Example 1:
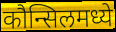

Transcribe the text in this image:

कौन्सिलमध्ये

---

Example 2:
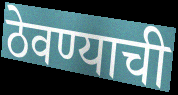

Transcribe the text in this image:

ठेवण्याची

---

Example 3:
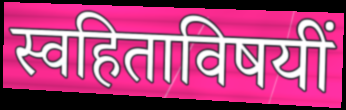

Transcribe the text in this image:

स्वहिताविषयीं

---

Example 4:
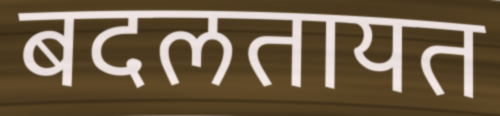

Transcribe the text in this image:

बदलतायत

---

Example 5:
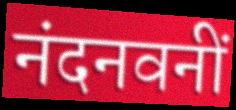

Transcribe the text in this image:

नंदनवनीं